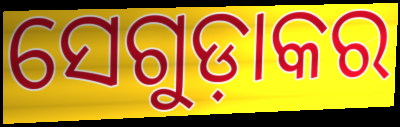
ସେଗୁଡ଼ାକର